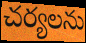
చర్యలను